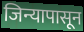
जिन्यापासून